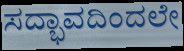
ಸದ್ಭಾವದಿಂದಲೇ